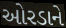
ઓરડાને